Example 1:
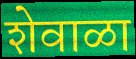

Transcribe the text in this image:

शेवाळा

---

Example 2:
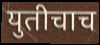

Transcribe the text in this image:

युतीचाच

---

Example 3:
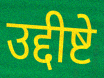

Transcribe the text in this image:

उद्दीष्टे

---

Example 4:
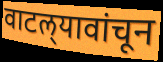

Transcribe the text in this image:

वाटल्यावांचून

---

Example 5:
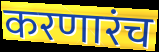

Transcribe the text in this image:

करणारंच